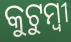
କୁଟୁମ୍ୱୀ